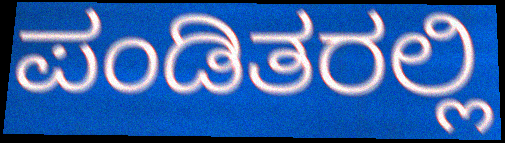
ಪಂಡಿತರಲ್ಲಿ